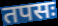
तपसः